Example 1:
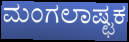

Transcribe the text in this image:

ಮಂಗಲಾಷ್ಟಕ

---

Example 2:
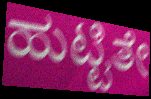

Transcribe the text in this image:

ಹುಟ್ಟಿತೇ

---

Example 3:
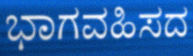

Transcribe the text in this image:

ಭಾಗವಹಿಸದ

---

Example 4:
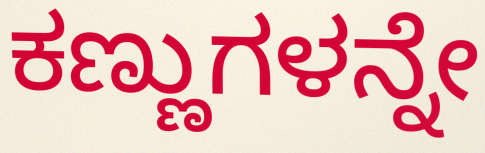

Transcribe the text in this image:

ಕಣ್ಣುಗಳನ್ನೇ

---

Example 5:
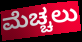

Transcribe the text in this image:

ಮೆಚ್ಚಲು